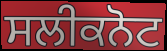
ਸਲੀਕਨੋਟ